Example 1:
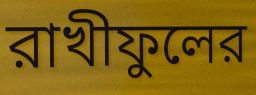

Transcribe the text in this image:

রাখীফুলের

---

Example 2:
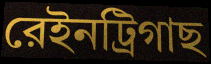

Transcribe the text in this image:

রেইনট্রিগাছ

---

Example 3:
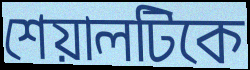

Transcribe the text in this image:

শেয়ালটিকে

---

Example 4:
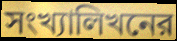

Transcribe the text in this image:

সংখ্যালিখনের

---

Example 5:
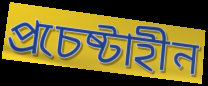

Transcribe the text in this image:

প্রচেষ্টাহীন